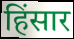
हिंसार